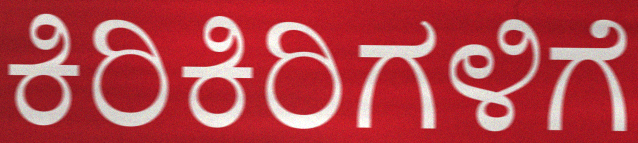
ಕಿರಿಕಿರಿಗಳಿಗೆ